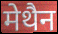
मेथैन